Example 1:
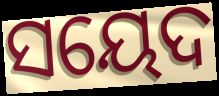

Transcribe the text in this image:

ସୟେଦ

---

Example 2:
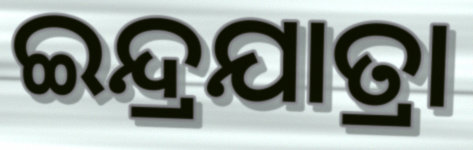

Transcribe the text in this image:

ଇନ୍ଦ୍ରଯାତ୍ରା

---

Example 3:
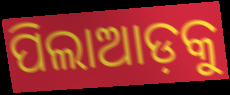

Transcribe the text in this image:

ପିଲାଆଡ଼କୁ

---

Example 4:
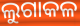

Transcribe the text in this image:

ଲୁଗାକଳ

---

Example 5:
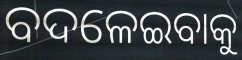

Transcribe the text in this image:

ବଦଳେଇବାକୁ